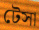
টেসা